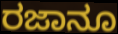
ರಜಾನೂ